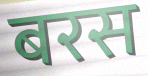
बरस